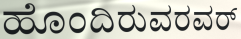
ಹೊಂದಿರುವರವರ್